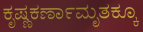
ಕೃಷ್ಣಕರ್ಣಾಮೃತಕ್ಕೂ